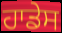
ਹਾਡੇਸ